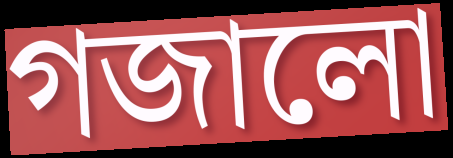
গজালো